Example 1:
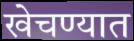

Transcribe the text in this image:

खेचण्यात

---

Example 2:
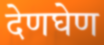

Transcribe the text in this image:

देणघेण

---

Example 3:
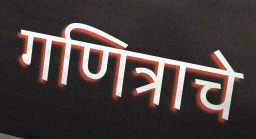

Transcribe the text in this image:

गणित्राचे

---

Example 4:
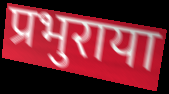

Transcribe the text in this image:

प्रभुराया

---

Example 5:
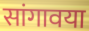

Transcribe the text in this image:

सांगावया